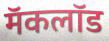
मॅकलॉड